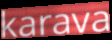
karava